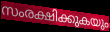
സംരക്ഷിക്കുകയും